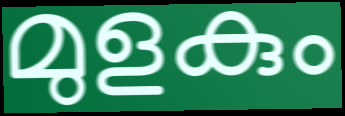
മുളകും